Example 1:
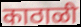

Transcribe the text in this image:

काठाळी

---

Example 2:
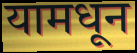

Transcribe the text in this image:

यामधून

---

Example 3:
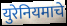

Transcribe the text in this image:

युरेनियमाचे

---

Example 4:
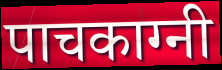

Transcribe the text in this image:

पाचकाग्नी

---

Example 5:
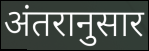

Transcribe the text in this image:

अंतरानुसार